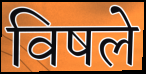
विषले